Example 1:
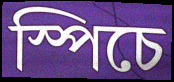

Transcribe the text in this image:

স্পিচে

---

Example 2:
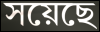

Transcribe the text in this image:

সয়েছে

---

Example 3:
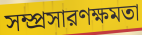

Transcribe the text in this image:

সম্প্রসারণক্ষমতা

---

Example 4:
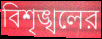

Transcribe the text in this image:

বিশৃঙ্খলের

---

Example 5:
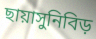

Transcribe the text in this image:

ছায়াসুনিবিড়